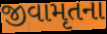
જીવામૃતના